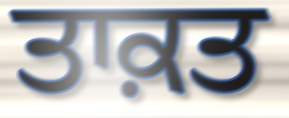
ਤਾਕ਼ਤ